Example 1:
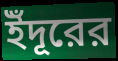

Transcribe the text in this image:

ইঁদূরের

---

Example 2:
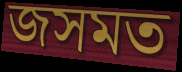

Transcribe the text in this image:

জসমত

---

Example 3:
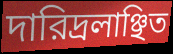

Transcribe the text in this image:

দারিদ্রলাঞ্ছিত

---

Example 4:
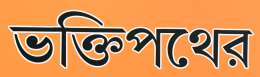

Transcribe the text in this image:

ভক্তিপথের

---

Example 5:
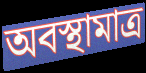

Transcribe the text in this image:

অবস্থামাত্র